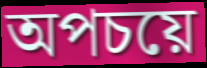
অপচয়ে